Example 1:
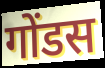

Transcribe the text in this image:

गोंडस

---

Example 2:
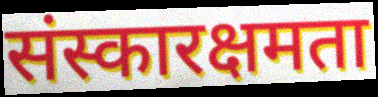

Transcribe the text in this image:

संस्कारक्षमता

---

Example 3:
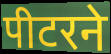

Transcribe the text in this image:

पीटरने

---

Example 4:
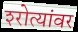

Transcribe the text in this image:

श्रोत्यांवर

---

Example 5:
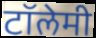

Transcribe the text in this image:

टॉलेमी